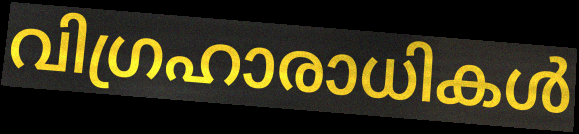
വിഗ്രഹാരാധികൾ